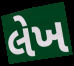
લેખ